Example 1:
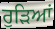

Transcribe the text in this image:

ਰੁੜਿਆਂ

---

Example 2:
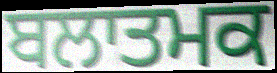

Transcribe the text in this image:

ਬਲਾਤਮਕ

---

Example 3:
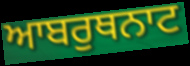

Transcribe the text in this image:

ਆਬਰੁਥਨਾਟ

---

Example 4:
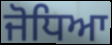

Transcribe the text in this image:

ਜੋਧਿਆ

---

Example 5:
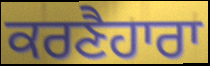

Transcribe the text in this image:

ਕਰਣੈਹਾਰਾ